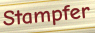
Stampfer